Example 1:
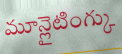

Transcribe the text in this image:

మూన్లైటింగ్కు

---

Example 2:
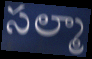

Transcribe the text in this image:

సల్మా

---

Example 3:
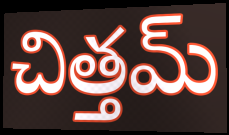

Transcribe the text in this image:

చిత్తమ్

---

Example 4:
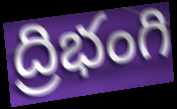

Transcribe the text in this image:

ద్రిభంగి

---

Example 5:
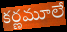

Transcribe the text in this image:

కర్ణమూలే